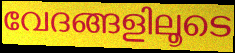
വേദങ്ങളിലൂടെ